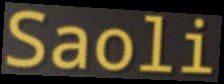
Saoli